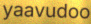
yaavudoo